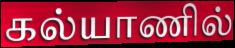
கல்யாணில்